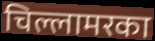
चिल्लामरका